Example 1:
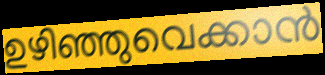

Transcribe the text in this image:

ഉഴിഞ്ഞുവെക്കാൻ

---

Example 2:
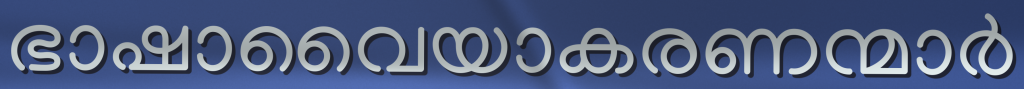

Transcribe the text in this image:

ഭാഷാവൈയാകരണന്മാർ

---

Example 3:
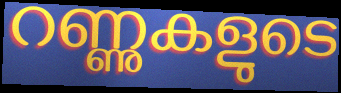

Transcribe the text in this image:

റണ്ണുകളുടെ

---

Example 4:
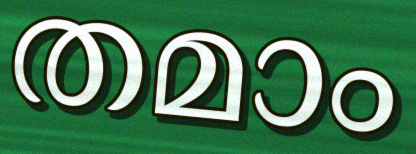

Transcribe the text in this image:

തമാം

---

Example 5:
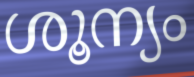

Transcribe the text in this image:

ശൂന്യം